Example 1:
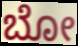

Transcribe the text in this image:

ಬೋ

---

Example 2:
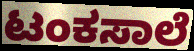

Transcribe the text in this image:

ಟಂಕಸಾಲೆ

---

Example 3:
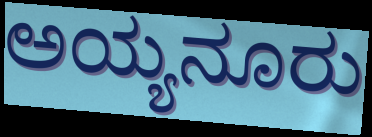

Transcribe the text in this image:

ಅಯ್ಯನೂರು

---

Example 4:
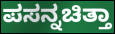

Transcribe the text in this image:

ಪಸನ್ನಚಿತ್ತಾ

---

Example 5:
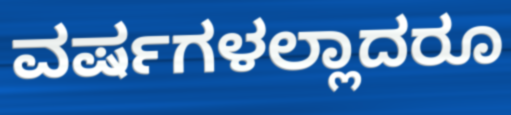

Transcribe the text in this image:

ವರ್ಷಗಳಲ್ಲಾದರೂ